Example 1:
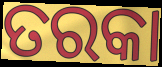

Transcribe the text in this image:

ତରକା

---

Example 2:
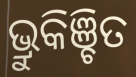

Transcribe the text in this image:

ଭ୍ରୁକିଞ୍ଚିତ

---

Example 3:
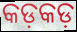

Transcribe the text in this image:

କଡ଼କଡ଼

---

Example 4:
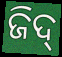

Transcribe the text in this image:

ଜିଦ୍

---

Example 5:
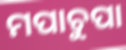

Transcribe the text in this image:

ମପାଚୁପା